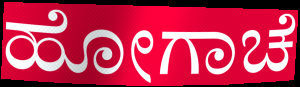
ಹೋಗಾಚೆ